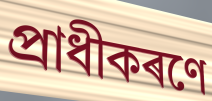
প্ৰাধীকৰণে